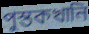
পুস্তকখানি